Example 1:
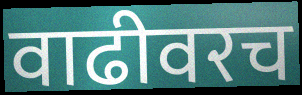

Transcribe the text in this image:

वाढीवरच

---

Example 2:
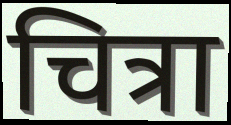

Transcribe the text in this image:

चित्रा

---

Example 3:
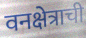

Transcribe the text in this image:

वनक्षेत्राची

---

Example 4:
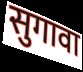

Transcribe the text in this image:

सुगावा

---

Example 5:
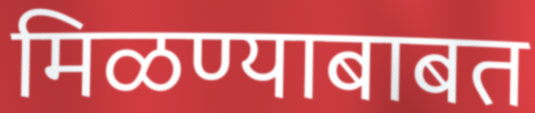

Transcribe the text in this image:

मिळण्याबाबत